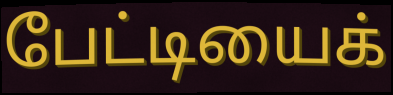
பேட்டியைக்